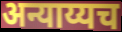
अन्याय्यच